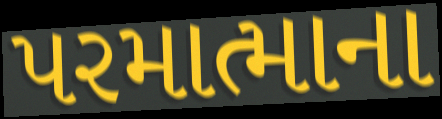
પરમાત્માના